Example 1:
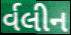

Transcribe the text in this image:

ર્વલીન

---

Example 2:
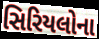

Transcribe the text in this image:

સિરિયલોના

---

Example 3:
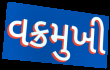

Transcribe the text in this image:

વક્રમુખી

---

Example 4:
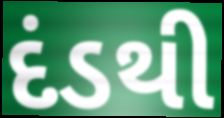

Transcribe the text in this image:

દંડથી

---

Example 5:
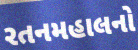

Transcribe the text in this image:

રતનમહાલનો